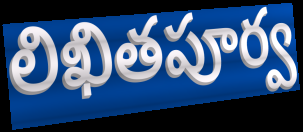
లిఖితపూర్వ